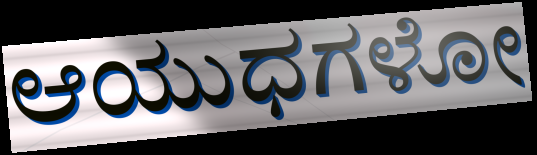
ಆಯುಧಗಳೋ